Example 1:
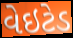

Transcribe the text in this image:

વેઇટેડ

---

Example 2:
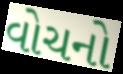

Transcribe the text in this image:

વોચનો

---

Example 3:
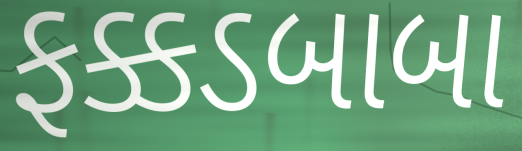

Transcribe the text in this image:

ફક્કડબાબા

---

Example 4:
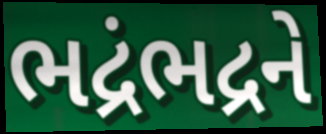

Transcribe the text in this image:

ભદ્રંભદ્રને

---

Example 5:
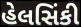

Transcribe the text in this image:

હેલસિંકી